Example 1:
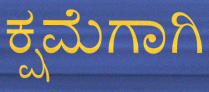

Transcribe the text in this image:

ಕ್ಷಮೆಗಾಗಿ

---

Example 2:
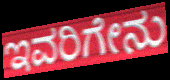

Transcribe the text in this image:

ಇವರಿಗೇನು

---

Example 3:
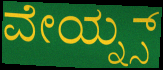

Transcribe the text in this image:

ವೇಯ್ನ್ಸ್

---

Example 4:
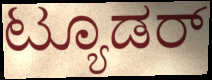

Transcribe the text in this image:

ಟ್ಯೂಡರ್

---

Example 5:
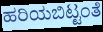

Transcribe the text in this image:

ಹರಿಯಬಿಟ್ಟಂತೆ